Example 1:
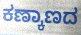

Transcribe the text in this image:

ಕಣ್ಕಾಣದ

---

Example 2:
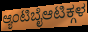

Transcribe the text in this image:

ಆ್ಯಂಟಿಬೈಆಟಿಕ್ಗಳ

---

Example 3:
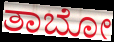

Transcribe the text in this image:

ತಾಬೋ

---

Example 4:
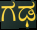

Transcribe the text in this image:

ಗಢ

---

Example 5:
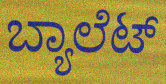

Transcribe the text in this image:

ಬ್ಯಾಲೆಟ್